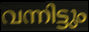
വന്നിട്ടും